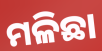
ମଳିଛା